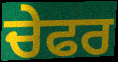
ਚੇਫਰ